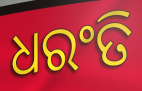
ଧରଂତି